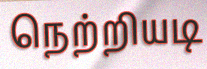
நெற்றியடி